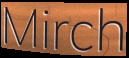
Mirch